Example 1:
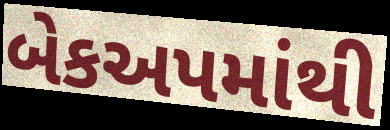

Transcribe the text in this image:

બેકઅપમાંથી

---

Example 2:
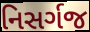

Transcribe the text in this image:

નિસર્ગજ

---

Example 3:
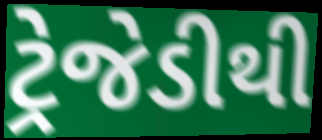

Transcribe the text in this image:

ટ્રેજેડીથી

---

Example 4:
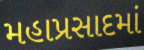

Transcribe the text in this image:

મહાપ્રસાદમાં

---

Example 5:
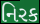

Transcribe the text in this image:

નિરક